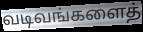
வடிவங்களைத்